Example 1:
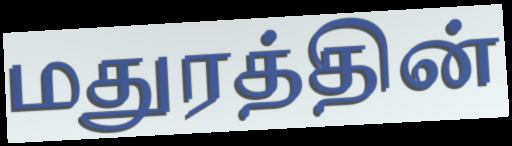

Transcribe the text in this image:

மதுரத்தின்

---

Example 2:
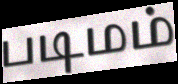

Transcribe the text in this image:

படிமம்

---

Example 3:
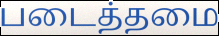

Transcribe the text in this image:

படைத்தமை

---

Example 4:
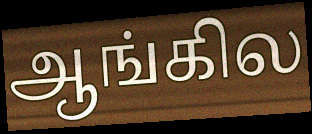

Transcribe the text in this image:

ஆங்கில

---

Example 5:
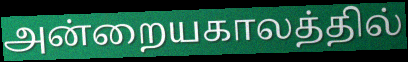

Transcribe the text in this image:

அன்றையகாலத்தில்